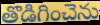
తొడిగించెను